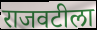
राजवटीला